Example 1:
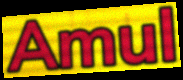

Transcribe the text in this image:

Amul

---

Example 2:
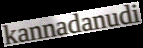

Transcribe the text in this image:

kannadanudi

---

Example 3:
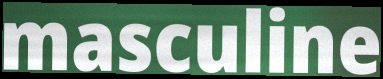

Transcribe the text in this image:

masculine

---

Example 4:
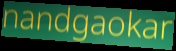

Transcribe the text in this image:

nandgaokar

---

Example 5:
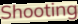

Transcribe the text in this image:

Shooting